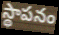
స్థాపనం